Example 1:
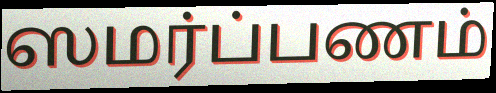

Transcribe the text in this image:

ஸமர்ப்பணம்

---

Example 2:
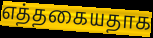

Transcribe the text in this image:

எத்தகையதாக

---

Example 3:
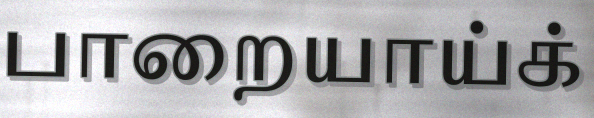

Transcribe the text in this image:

பாறையாய்க்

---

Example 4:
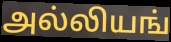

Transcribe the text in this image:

அல்லியங்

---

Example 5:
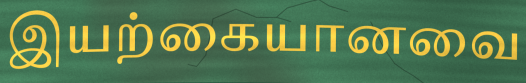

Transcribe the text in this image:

இயற்கையானவை